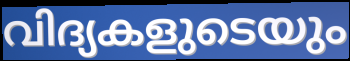
വിദ്യകളുടെയും